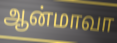
ஆன்மாவா